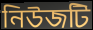
নিউজটি